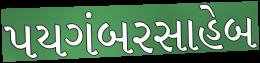
પયગંબરસાહેબ